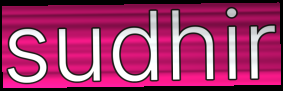
sudhir